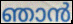
ഞാൻ